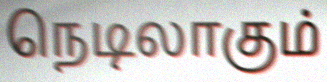
நெடிலாகும்